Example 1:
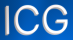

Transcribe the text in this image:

ICG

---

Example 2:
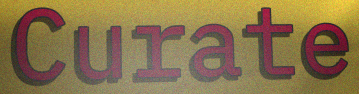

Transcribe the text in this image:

Curate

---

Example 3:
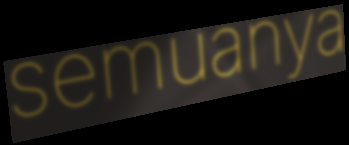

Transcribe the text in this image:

semuanya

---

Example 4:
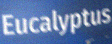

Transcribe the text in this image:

Eucalyptus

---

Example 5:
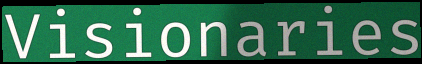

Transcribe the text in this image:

Visionaries